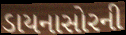
ડાયનાસોરની